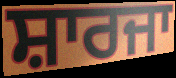
ਸ਼ਾਰਜਾ